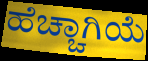
ಹೆಚ್ಚಾಗಿಯೆ